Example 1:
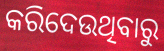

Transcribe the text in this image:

କରିଦେଉଥିବାରୁ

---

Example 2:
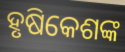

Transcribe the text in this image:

ହୃଷିକେଶଙ୍କ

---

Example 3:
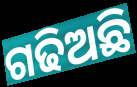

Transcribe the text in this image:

ଗଢିଅଛି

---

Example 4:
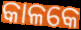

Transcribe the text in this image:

କାଳକେ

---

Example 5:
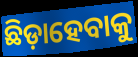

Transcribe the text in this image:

ଛିଡ଼ାହେବାକୁ